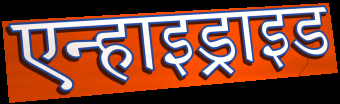
एन्हाइड्राइड